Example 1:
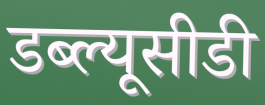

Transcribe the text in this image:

डब्ल्यूसीडी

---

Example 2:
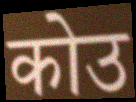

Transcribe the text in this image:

कोउ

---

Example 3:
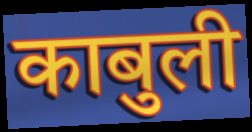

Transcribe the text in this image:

काबुली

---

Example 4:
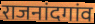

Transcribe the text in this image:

राजनांदगांव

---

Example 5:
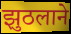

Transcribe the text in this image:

झुठलाने